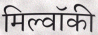
मिल्वॉकी